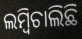
ଲମ୍ବିଚାଲିଛି